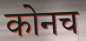
कोनच